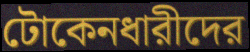
টোকেনধারীদের